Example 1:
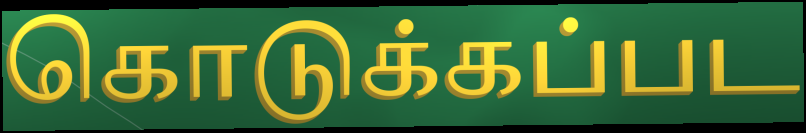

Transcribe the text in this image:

கொடுக்கப்பட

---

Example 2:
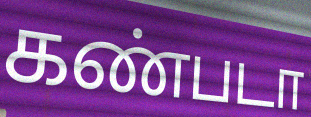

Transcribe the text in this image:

கண்படா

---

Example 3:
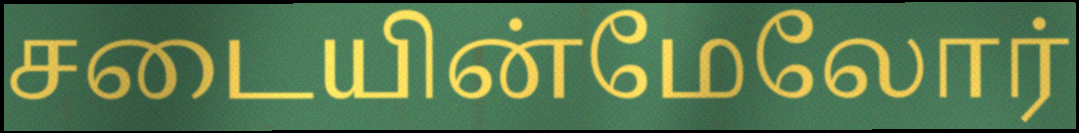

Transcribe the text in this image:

சடையின்மேலோர்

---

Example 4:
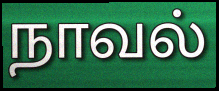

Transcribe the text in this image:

நாவல்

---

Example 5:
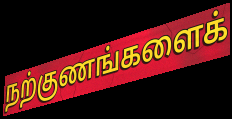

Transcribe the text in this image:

நற்குணங்களைக்